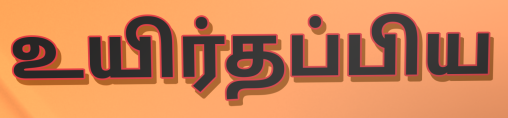
உயிர்தப்பிய